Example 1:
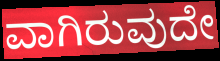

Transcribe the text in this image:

ವಾಗಿರುವುದೇ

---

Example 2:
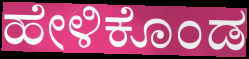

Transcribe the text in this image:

ಹೇಳಿಕೊಂಡ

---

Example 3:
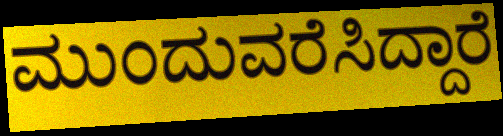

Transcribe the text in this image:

ಮುಂದುವರೆಸಿದ್ದಾರೆ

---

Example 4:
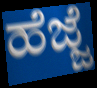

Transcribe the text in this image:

ಹೆಜ್ಜೆ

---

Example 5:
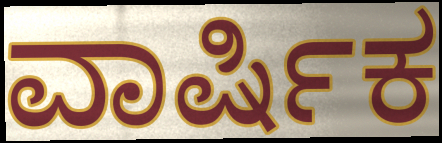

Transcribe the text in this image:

ವಾರ್ಷಿಕ